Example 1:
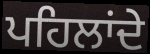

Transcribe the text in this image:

ਪਹਿਲਾਂਦੇ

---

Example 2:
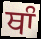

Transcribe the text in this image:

ਥਾੰ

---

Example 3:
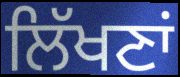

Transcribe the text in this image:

ਲਿੱਖਣਾਂ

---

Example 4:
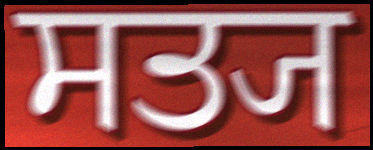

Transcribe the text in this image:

ਸਤ੍ਯ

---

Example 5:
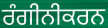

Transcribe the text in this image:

ਰੰਗੀਨੀਕਰਨ